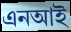
এনআই